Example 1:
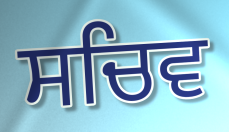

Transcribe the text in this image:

ਸਚਿਵ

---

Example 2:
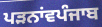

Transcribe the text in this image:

ਪੜਨਾਂਵਪੰਜਾਬ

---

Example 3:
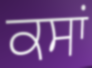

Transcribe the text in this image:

ਕਸਾਂ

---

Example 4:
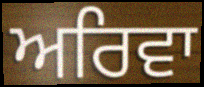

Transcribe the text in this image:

ਅਰਿਵਾ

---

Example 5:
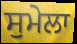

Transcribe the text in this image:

ਸੁਮੇਲਾ